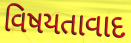
વિષયતાવાદ